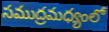
సముద్రమధ్యంలో